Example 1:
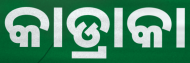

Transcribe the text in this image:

କାଡ୍ରାକା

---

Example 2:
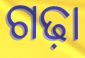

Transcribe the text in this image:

ଗଢ଼ା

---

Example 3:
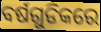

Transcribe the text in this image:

ବର୍ଷଗୁଡିକରେ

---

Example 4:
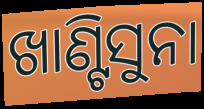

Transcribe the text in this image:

ଖାଣ୍ଟିସୁନା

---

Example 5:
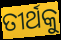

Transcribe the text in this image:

ତୀର୍ଥକୁ